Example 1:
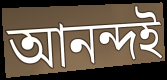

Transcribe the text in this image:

আনন্দই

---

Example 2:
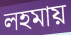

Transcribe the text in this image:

লহমায়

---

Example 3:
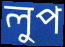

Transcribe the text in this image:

লুপ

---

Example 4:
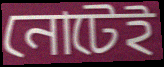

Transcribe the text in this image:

নোটেই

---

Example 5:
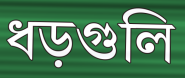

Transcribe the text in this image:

ধড়গুলি